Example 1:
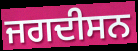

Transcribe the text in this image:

ਜਗਦੀਸਨ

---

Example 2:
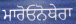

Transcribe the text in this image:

ਮਾਰੋਓਨੋਥੇਰਾ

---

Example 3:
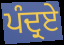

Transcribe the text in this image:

ਪੰਦ੍ਰਏ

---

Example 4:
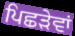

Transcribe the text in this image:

ਪਿਛੜੇਵਾਂ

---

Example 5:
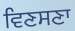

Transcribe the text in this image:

ਵਿਣਸਣਾ